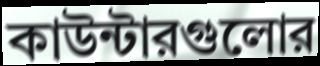
কাউন্টারগুলোর